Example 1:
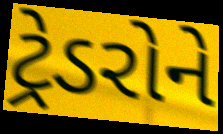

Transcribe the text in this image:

ટ્રેડરોને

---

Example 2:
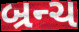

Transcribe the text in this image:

બ્રન્ચ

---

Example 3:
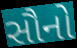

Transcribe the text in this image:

સૌનો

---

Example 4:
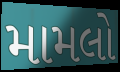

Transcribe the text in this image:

મામલો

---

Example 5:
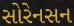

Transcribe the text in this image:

સોરેનસન